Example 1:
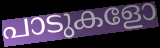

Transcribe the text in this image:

പാടുകളോ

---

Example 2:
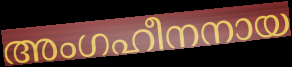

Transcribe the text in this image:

അംഗഹീനനായ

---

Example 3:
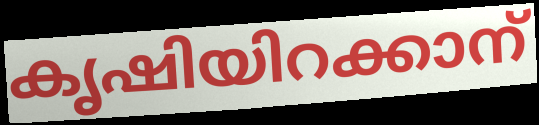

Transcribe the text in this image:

കൃഷിയിറക്കാന്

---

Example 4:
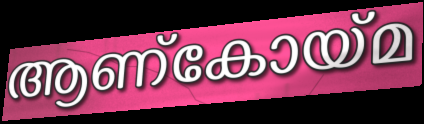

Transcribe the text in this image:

ആണ്കോയ്മ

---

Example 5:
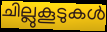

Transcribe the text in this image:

ചില്ലുകൂടുകൾ